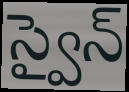
స్వైన్